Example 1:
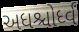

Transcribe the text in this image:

અધશ્ચોર્ધ્વં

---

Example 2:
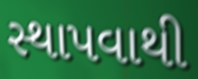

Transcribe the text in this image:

સ્થાપવાથી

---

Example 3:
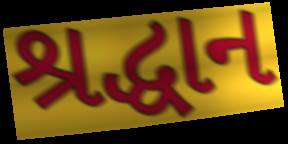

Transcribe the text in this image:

શ્રદ્ધાન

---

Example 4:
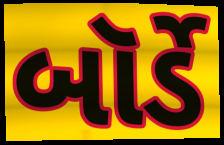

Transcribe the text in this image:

બૉર્ડે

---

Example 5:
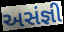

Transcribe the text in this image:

અસંજ્ઞી